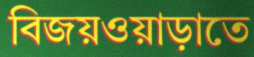
বিজয়ওয়াড়াতে